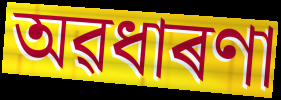
অৱধাৰণা